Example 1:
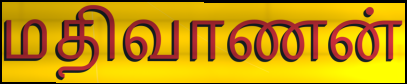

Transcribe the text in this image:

மதிவாணன்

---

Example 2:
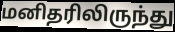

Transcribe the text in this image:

மனிதரிலிருந்து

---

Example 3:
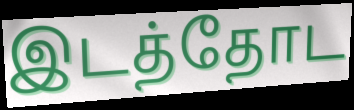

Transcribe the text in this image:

இடத்தோட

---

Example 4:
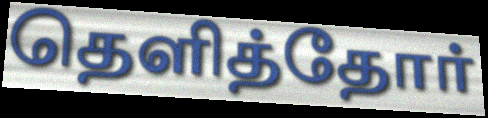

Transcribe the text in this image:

தெளித்தோர்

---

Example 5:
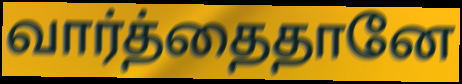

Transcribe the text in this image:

வார்த்தைதானே